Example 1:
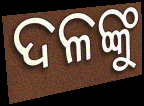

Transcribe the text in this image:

ଦଳଙ୍କୁ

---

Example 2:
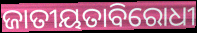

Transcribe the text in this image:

ଜାତୀୟତାବିରୋଧୀ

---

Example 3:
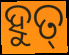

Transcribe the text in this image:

ହୁତ୍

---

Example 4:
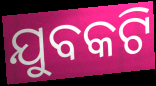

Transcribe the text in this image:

ଯୁବକଟି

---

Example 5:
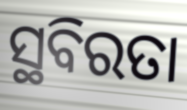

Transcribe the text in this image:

ସ୍ଥବିରତା